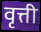
वृत्ती